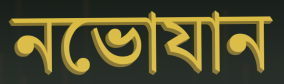
নভোযান